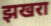
झखरा